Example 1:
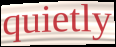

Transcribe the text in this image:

quietly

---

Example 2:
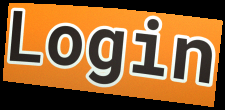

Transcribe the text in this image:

Login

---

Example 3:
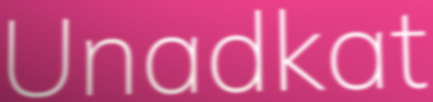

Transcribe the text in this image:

Unadkat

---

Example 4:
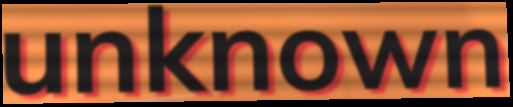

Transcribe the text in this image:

unknown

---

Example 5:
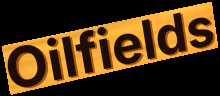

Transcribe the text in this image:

Oilfields